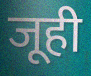
जूही